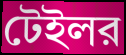
টেইলর